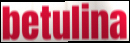
betulina